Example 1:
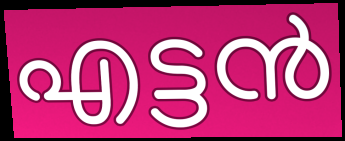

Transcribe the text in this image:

എട്ടൻ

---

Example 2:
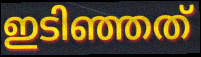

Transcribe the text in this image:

ഇടിഞ്ഞത്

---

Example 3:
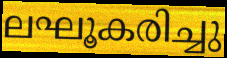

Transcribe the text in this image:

ലഘൂകരിച്ചു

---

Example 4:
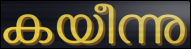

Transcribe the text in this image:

കയീന്നു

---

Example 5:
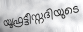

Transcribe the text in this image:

യൂഫ്രട്ടീസ്നദിയുടെ